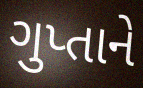
ગુપ્તાને